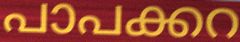
പാപക്കറ